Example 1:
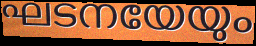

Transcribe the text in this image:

ഘടനയേയും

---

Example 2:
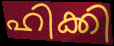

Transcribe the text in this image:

ഹിക്കി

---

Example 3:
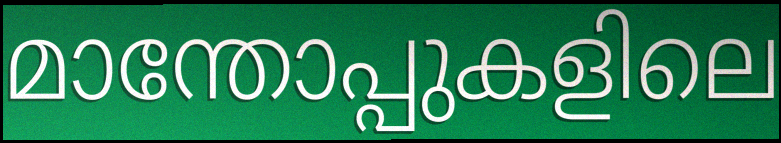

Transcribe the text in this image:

മാന്തോപ്പുകളിലെ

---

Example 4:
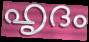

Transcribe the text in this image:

ഹൃദം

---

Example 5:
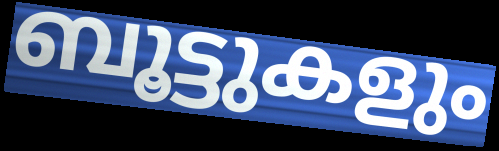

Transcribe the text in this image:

ബൂട്ടുകളും